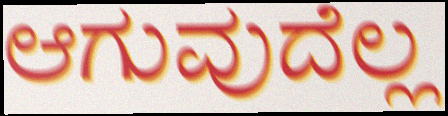
ಆಗುವುದೆಲ್ಲ